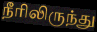
நீரிலிருந்து